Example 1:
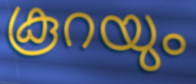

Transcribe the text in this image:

കൂറയും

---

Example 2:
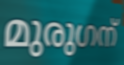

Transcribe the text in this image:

മുരുഗന്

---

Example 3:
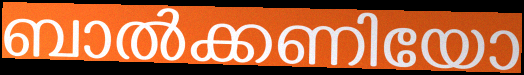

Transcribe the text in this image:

ബാൽക്കണിയോ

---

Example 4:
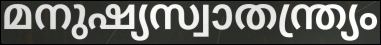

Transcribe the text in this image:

മനുഷ്യസ്വാതന്ത്ര്യം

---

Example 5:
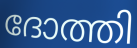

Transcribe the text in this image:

ദോത്തി